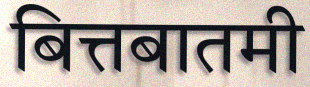
बित्तबातमी